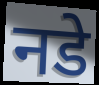
नडे